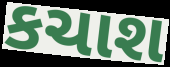
કચાશ